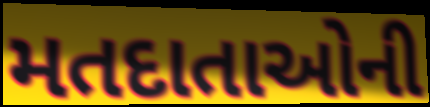
મતદાતાઓની